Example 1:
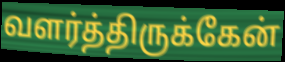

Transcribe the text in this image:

வளர்த்திருக்கேன்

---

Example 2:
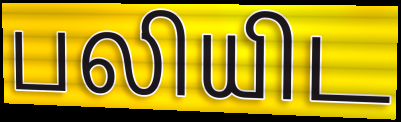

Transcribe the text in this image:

பலியிட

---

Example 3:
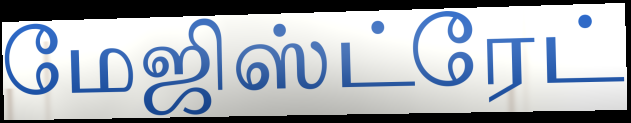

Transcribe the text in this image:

மேஜிஸ்ட்ரேட்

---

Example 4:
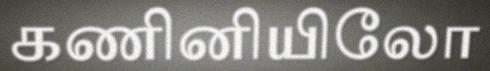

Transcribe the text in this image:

கணினியிலோ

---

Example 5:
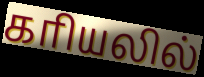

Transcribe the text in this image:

கரியலில்